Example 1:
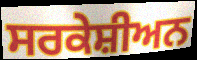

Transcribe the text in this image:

ਸਰਕੇਸ਼ੀਅਨ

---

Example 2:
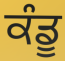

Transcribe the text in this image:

ਕੰਡੂ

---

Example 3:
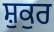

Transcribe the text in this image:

ਸ਼ੁਕੁਰ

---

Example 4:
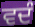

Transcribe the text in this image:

ਵਦੰ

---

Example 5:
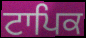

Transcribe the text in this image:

ਟਾਪਿਕ